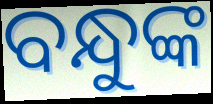
ବନ୍ଧୁଙ୍କ